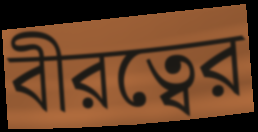
বীরত্বের